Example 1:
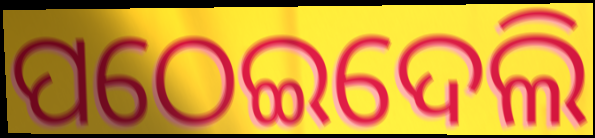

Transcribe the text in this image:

ପଠେଇଦେଲି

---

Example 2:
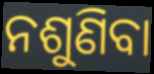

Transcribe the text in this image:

ନଶୁଣିବା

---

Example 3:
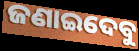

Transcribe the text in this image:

ଜଣାଇଦେବୁ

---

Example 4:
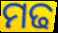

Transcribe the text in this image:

ମଢ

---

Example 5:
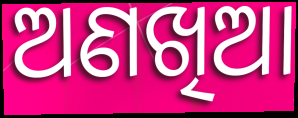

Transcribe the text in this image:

ଅଣଖିଆ